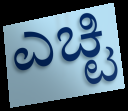
ಎಚ್ಟಿ